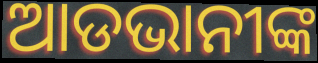
ଆଡଭାନୀଙ୍କ